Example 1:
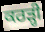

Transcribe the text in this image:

ਕਰੜ੍ਹੀ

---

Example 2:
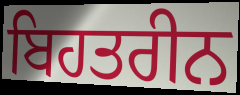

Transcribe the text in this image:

ਬਿਹਤਰੀਨ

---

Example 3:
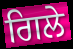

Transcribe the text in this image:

ਗਿਲੇ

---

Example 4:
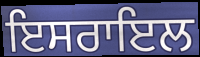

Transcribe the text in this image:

ਇਸਰਾਇਲ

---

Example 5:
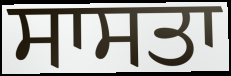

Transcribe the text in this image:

ਸਾਸਤਾ